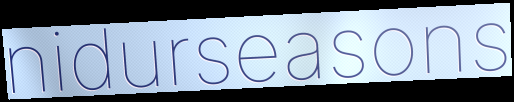
nidurseasons